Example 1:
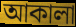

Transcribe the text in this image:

আকালা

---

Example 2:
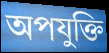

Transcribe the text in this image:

অপযুক্তি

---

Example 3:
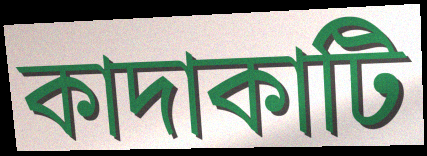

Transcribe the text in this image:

কাদাকাটি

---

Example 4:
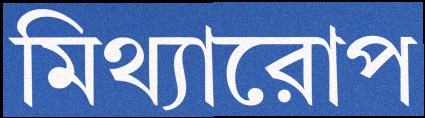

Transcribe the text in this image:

মিথ্যারোপ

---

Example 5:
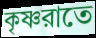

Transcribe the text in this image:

কৃষ্ণরাতে